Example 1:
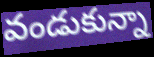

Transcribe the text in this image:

వండుకున్నా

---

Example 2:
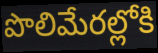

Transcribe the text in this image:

పొలిమేరల్లోకి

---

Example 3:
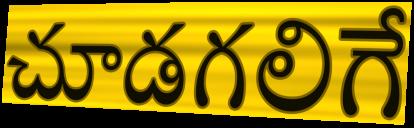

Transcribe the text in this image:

చూడగలిగే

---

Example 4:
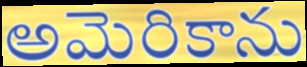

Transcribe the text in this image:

అమెరికాను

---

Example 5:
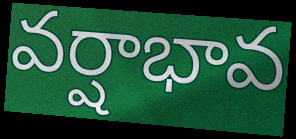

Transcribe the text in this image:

వర్షాభావ